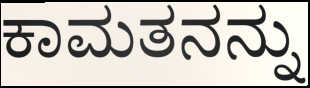
ಕಾಮತನನ್ನು